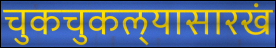
चुकचुकल्यासारखं